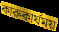
কারুকার্যময়